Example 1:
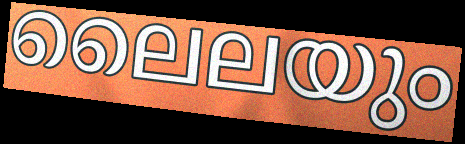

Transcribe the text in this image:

ലൈലയും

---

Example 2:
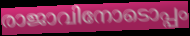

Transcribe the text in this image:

രാജാവിനോടൊപ്പം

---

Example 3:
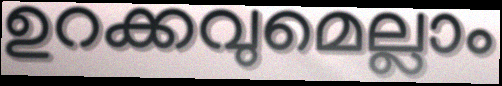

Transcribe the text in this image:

ഉറക്കവുമെല്ലാം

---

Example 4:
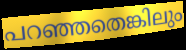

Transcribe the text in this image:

പറഞ്ഞതെങ്കിലും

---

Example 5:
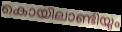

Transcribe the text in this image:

കൊയിലാണ്ടിയും